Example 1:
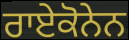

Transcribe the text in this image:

ਰਾਏਕੋਨੇਨ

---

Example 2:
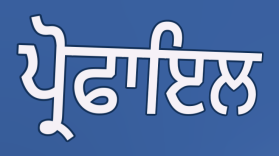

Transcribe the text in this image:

ਪ੍ਰੋਫਾਇਲ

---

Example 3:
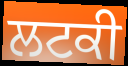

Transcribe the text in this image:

ਲਟਕੀ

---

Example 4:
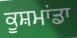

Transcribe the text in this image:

ਕੂਸ਼ਮਾਂਡਾ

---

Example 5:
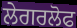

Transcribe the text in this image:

ਲੇਗਰਲੋਫ